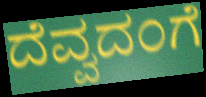
ದೆವ್ವದಂಗೆ